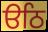
ੳਠਿ